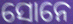
ସୋନେ